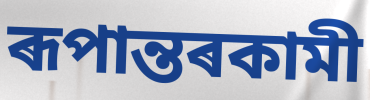
ৰূপান্তৰকামী